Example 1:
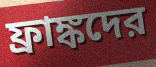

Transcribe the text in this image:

ফ্রাঙ্কদের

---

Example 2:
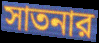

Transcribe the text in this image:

সাতনার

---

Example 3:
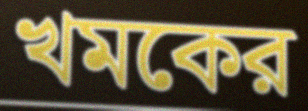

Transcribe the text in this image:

খমকের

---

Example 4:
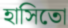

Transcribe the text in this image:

হাসিতো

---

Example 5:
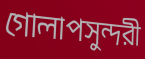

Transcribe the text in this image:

গোলাপসুন্দরী